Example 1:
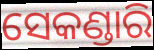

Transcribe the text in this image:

ସେକଣ୍ଡାରି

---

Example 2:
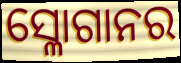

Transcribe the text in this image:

ସ୍ଳୋଗାନର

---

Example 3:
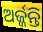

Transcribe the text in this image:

ଅର୍ଜ୍ଜନ୍ତି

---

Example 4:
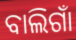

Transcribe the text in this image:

ବାଲିଗାଁ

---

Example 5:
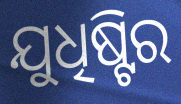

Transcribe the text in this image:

ଯୁଧିଷ୍ଟିର